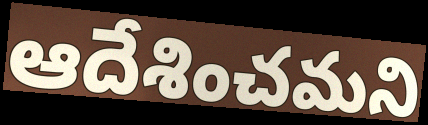
ఆదేశించమని